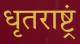
धृतराष्ट्रं